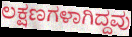
ಲಕ್ಷಣಗಳಾಗಿದ್ದವು